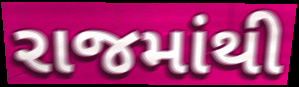
રાજમાંથી